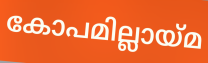
കോപമില്ലായ്മ